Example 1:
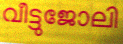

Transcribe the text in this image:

വീട്ടുജോലി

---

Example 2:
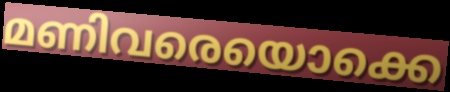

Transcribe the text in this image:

മണിവരെയൊക്കെ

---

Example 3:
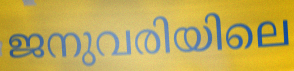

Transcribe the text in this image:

ജനുവരിയിലെ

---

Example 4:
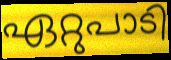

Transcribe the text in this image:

ഏറ്റുപാടി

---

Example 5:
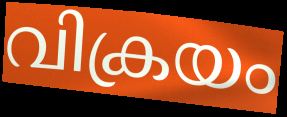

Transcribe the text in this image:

വിക്രയം